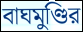
বাঘমুণ্ডির